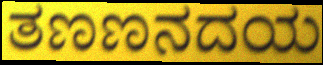
ತಣಣನದಯ